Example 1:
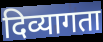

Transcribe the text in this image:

दिव्यागता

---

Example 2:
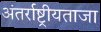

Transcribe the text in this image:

अंतर्राष्ट्रीयताजा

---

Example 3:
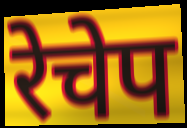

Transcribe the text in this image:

रेचेप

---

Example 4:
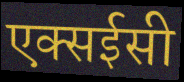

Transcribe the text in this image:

एक्सईसी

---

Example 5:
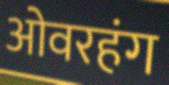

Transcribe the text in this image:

ओवरहंग